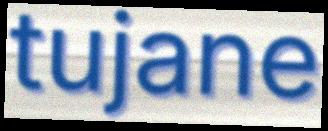
tujane